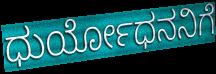
ಧುರ್ಯೋಧನನಿಗೆ